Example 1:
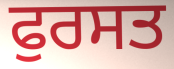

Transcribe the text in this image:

ਫੁਰਸਤ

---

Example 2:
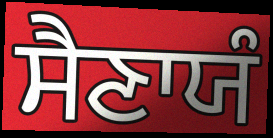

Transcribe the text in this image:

ਸੈਣਾਯੰ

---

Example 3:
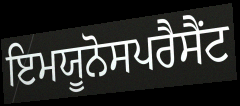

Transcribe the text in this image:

ਇਮਯੂਨੋਸਪਰੈਸੈਂਟ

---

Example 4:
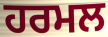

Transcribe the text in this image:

ਹਰਮਲ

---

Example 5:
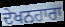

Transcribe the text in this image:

ਦੇਖਨਹਾਰਾ